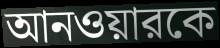
আনওয়ারকে